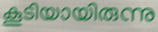
കൂടിയായിരുന്നു